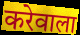
करेवाला